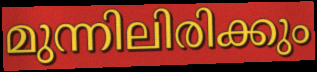
മുന്നിലിരിക്കും